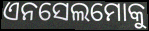
ଏନସେଲମୋକୁ